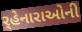
ર્‌હેનારાઓની